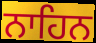
ਨਾਹਿਨ